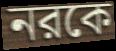
নরকে